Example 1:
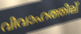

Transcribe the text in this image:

വിവാഹത്തില്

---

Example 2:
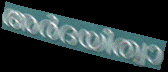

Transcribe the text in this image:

അർദയിത്വാ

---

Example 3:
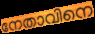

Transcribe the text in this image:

നേതാവിനെ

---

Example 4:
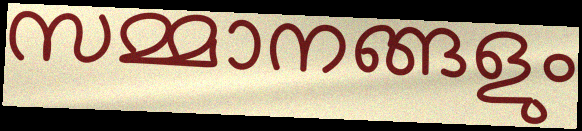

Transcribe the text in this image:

സമ്മാനങ്ങളും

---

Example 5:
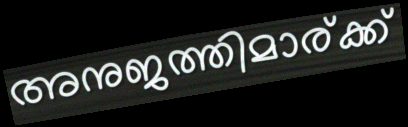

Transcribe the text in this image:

അനുജത്തിമാര്ക്ക്